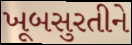
ખૂબસુરતીને